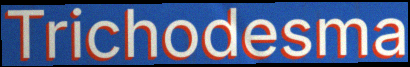
Trichodesma